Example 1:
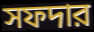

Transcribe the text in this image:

সফদার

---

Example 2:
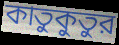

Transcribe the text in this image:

কাতুকুতুর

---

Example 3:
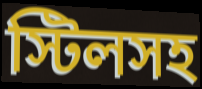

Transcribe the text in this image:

স্টিলসহ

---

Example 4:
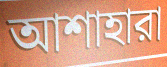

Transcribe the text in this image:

আশাহারা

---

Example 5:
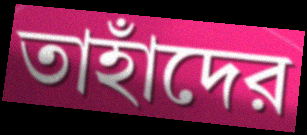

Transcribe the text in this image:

তাহাঁদের